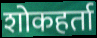
शोकहर्ता